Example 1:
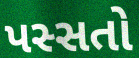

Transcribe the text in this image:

પસ્સતો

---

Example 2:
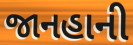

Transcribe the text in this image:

જાનહાની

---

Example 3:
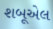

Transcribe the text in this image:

શબૂએલ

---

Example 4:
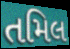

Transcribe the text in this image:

તમિલ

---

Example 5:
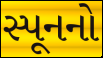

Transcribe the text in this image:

સ્પૂનનો